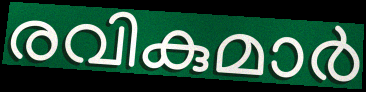
രവികുമാർ